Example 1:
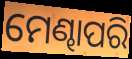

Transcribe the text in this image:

ମେଣ୍ଢାପରି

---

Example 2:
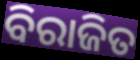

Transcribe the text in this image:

ବିରାଜିତ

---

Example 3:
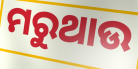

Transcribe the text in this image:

ମରୁଥାଉ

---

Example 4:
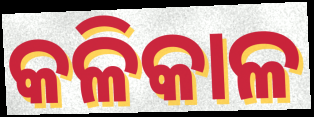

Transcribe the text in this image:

କଳିକାଳ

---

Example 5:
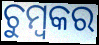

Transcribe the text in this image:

ଚୁମ୍ବକର